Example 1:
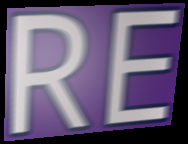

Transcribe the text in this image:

RE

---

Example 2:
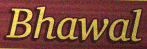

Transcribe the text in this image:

Bhawal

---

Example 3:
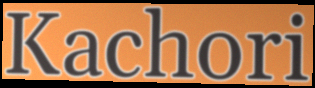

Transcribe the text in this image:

Kachori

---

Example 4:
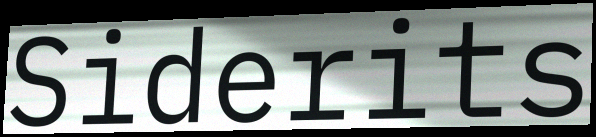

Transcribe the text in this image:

Siderits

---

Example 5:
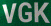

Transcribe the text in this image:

VGK